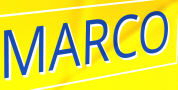
MARCO